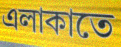
এলাকাতে